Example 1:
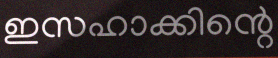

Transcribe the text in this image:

ഇസഹാക്കിന്റെ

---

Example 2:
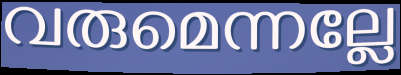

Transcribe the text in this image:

വരുമെന്നല്ലേ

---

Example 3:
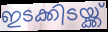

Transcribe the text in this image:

ഇടക്കിടയ്ക്ക്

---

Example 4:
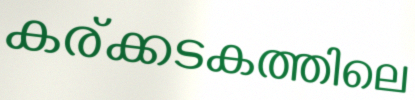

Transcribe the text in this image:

കര്ക്കടകത്തിലെ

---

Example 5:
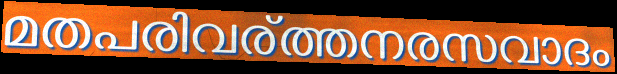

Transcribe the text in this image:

മതപരിവര്ത്തനരസവാദം